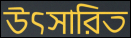
উৎসারিত